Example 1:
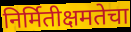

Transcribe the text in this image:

निर्मितीक्षमतेचा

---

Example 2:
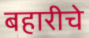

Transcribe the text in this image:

बहारीचे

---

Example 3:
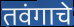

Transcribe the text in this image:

तवंगाचे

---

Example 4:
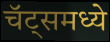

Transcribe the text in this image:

चॅट्समध्ये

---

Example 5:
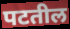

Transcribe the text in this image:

पटतील